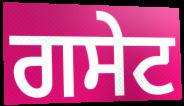
ਗਸੇਟ